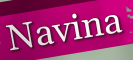
Navina